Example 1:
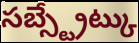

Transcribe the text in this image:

సబ్స్ట్రేట్కు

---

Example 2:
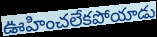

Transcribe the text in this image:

ఊహించలేకపోయాడు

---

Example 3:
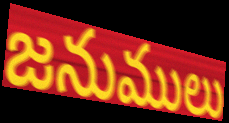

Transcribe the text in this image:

జనుములు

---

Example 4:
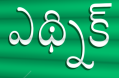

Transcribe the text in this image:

ఎథ్నిక్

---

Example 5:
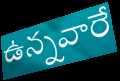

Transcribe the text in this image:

ఉన్నవారే